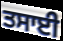
ਤਸਾਈ